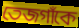
তেজগাঁকে